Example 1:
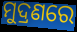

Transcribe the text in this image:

ମୁଦ୍ରଣରେ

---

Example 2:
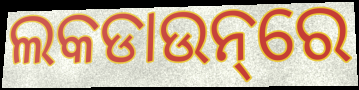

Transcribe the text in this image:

ଲକଡାଉନ୍‌ରେ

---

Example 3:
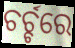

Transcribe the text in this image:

ଚର୍ଚ୍ଚରେ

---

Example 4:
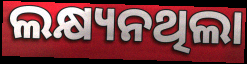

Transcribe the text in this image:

ଲକ୍ଷ୍ୟନଥିଲା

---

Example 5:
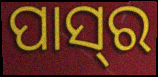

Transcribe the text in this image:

ପାସ୍‍ର